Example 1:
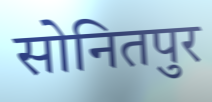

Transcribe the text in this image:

सोनितपुर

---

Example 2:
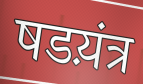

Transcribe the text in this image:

षडय़ंत्र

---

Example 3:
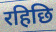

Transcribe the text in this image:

रहिछि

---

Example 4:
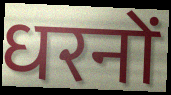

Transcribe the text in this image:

धरनों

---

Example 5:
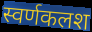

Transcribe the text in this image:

स्वर्णकलश